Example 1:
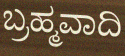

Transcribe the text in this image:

ಬ್ರಹ್ಮವಾದಿ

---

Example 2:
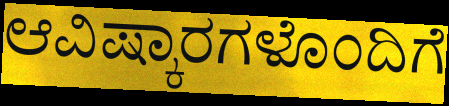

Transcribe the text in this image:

ಆವಿಷ್ಕಾರಗಳೊಂದಿಗೆ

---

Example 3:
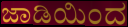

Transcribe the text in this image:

ಜಾಡಿಯಿಂದ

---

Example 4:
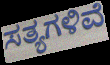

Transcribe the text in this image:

ಸತ್ಯಗಳಿವೆ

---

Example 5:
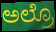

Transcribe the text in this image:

ಅಲ್ರೊ